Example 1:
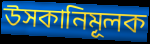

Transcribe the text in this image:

উসকানিমূলক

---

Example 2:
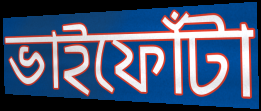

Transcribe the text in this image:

ভাইফোঁটা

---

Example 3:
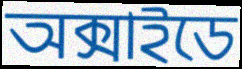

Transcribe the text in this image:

অক্সাইডে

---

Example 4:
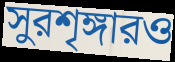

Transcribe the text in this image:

সুরশৃঙ্গারও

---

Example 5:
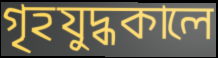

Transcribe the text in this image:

গৃহযুদ্ধকালে